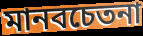
মানবচেতনা